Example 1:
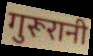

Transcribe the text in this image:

गुरूरानी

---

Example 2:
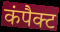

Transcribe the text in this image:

कंपैक्ट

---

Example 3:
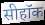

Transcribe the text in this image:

सीहॉक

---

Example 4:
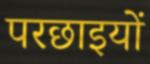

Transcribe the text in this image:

परछाइयों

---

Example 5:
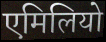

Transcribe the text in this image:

एमिलियो